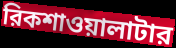
রিকশাওয়ালাটার